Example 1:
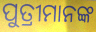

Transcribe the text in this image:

ପୁତ୍ରୀମାନଙ୍କ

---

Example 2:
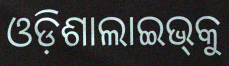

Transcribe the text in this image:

ଓଡ଼ିଶାଲାଇଭ୍‌କୁ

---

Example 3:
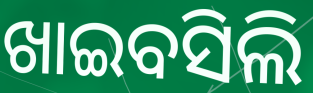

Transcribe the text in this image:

ଖାଇବସିଲି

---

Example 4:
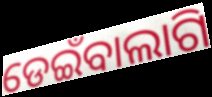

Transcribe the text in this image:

ଡେଇଁବାଲାଗି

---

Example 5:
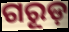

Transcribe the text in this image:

ଗରୂଡ଼